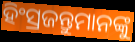
ହିଂସ୍ରଜନ୍ତୁମାନଙ୍କୁ